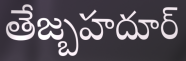
తేజ్బహదూర్